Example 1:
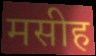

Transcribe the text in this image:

मसीह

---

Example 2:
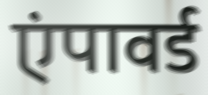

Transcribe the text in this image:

एंपावर्ड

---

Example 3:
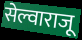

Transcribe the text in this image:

सेल्वाराजू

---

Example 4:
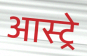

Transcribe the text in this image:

आस्ट्रे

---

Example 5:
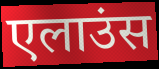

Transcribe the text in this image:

एलाउंस